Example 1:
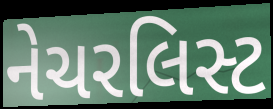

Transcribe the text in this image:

નેચરલિસ્ટ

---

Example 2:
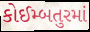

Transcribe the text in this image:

કોઈમ્બતુરમાં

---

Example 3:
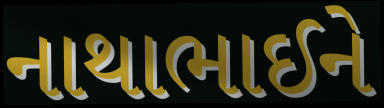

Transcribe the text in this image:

નાથાભાઈને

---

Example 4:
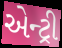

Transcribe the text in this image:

એન્‍ટ્રી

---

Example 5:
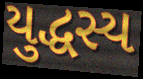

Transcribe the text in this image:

યુદ્ધસ્ય